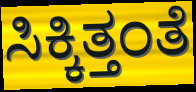
ಸಿಕ್ಕಿತ್ತಂತೆ